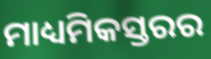
ମାଧ୍ୟମିକସ୍ତରର